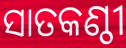
ସାତକଣ୍ଠୀ